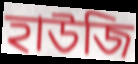
হাউজি